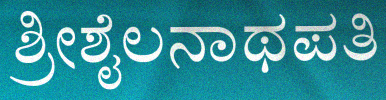
ಶ್ರೀಶೈಲನಾಥಪತಿ